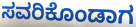
ಸವರಿಕೊಂಡಾಗ